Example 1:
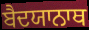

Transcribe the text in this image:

ਬੈਦਯਾਨਾਥ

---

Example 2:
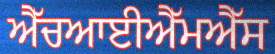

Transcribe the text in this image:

ਐੱਚਆਈਐੱਮਐੱਸ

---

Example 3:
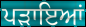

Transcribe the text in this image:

ਪੜਾਇਆਂ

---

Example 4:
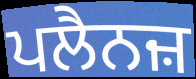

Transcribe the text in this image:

ਪਲੈਨਜ਼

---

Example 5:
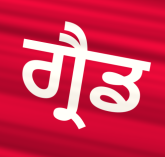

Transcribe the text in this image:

ਗ੍ਰੈਡ